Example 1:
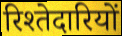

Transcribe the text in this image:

रिश्तेदारियों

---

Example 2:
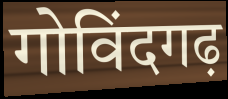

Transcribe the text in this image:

गोविंदगढ़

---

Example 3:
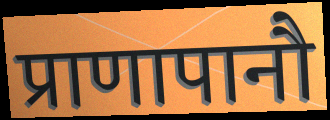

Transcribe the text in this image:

प्राणापानौ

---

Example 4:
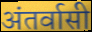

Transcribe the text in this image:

अंतर्वासी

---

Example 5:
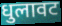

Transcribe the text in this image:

धुलावट